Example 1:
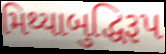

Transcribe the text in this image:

મિથ્યાબુદ્ધિરૂપ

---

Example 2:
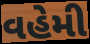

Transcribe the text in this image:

વહેમી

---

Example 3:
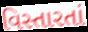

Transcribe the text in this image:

વિસ્તારતાં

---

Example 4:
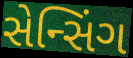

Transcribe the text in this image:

સેન્સિંગ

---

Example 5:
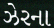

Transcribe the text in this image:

ઝેરના